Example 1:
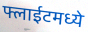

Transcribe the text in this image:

फ्लाईटमध्ये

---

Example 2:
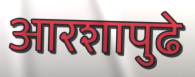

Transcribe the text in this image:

आरशापुढे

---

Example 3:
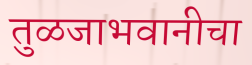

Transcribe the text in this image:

तुळजाभवानीचा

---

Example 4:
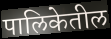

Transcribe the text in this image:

पालिकेतील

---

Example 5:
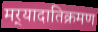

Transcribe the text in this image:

मर्यादातिक्रमण